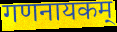
गणनायकम्